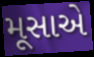
મૂસાએ